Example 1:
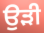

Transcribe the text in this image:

ਉਡ਼ੀ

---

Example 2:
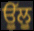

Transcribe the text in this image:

ਊੱਲੂ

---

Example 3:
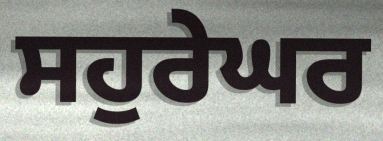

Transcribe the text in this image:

ਸਹੁਰੇਘਰ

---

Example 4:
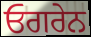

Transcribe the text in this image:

ਓਗਰੇਨ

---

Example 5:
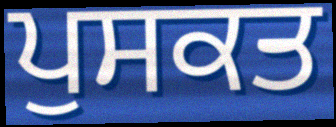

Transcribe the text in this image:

ਪੁਸਕਤ